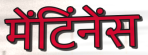
मेंटिंनेंस